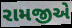
રામજીએ